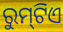
ରୁମ୍‌ଟିଏ